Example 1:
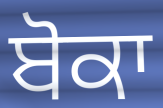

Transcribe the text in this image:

ਬੋਕਾ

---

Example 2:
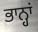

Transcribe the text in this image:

ਭਾਨ੍ਹਾਂ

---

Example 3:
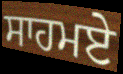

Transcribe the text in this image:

ਸਾਹਮਏ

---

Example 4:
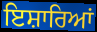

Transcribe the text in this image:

ਇਸ਼ਾਰਿਆਂ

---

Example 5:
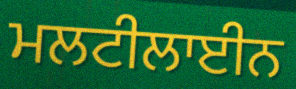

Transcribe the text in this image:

ਮਲਟੀਲਾਈਨ